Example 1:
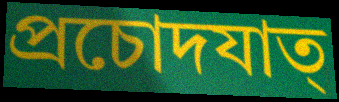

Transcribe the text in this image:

প্রচোদযাত্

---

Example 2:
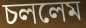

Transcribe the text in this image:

চললেম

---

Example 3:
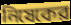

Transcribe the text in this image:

নিষেকের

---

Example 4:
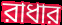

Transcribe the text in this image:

রাধার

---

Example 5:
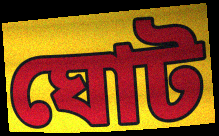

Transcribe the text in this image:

ঘোট